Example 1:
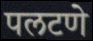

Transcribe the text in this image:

पलटणे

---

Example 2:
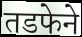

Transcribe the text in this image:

तडफेने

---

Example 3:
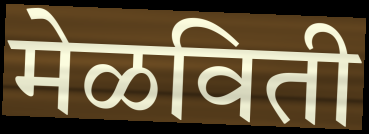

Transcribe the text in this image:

मेळविती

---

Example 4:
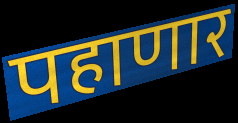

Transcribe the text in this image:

पहाणार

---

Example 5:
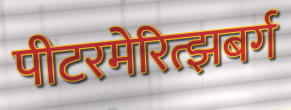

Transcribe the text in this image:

पीटरमेरित्झबर्ग